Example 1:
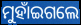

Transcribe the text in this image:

ମୁହାଁଇଗଲେ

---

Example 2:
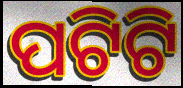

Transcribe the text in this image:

ପଟିଟି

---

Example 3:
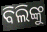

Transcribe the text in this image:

ବିଲିଙ୍କୁ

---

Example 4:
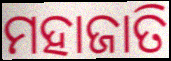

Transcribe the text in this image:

ମହାଜାତି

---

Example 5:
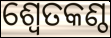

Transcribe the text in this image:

ଶ୍ୱେତକଣ୍ଠ